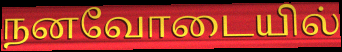
நனவோடையில்